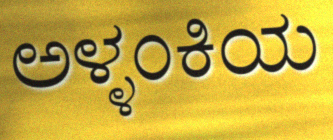
ಅಳ್ಳಂಕಿಯ